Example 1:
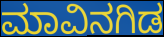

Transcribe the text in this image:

ಮಾವಿನಗಿಡ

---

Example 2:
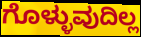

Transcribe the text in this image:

ಗೊಳ್ಳುವುದಿಲ್ಲ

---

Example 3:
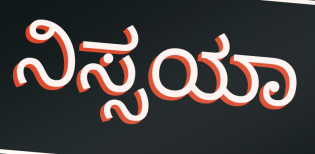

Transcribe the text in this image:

ನಿಸ್ಸಯಾ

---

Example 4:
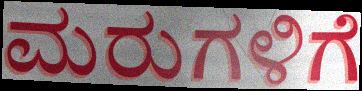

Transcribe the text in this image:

ಮರುಗಳಿಗೆ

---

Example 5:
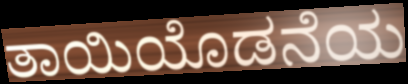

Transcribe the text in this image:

ತಾಯಿಯೊಡನೆಯ